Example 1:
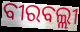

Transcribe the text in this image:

ବୀରବଲ୍ଲୀ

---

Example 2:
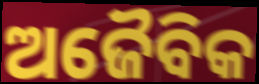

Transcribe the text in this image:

ଅଜୈବିକ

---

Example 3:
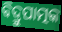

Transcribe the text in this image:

ବିଦ୍ରୁପାତ୍ମକ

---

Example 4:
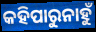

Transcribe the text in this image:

କହିପାରୁନାହୁଁ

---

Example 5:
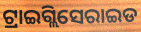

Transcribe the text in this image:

ଟ୍ରାଇଗ୍ଲିସେରାଇଡ